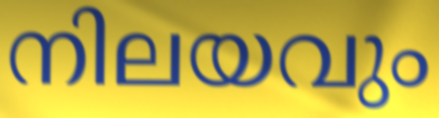
നിലയവും